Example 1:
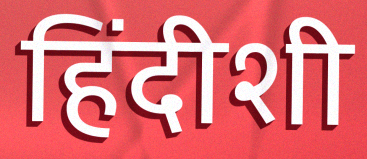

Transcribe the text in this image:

हिंदीशी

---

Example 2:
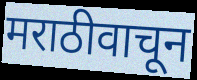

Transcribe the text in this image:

मराठीवाचून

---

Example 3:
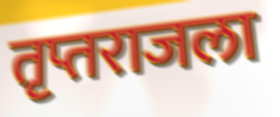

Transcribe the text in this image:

तृप्तराजला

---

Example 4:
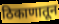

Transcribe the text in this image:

ठिकाणातून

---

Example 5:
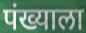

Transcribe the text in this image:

पंख्याला